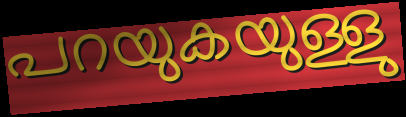
പറയുകയുള്ളു